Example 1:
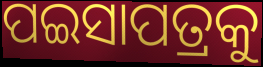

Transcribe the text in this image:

ପଇସାପତ୍ରକୁ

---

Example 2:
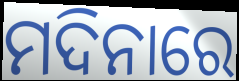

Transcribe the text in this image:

ମଦିନାରେ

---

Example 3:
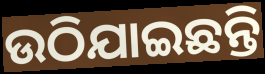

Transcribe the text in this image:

ଉଠିଯାଇଛନ୍ତି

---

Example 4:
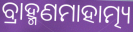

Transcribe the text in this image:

ବ୍ରାହ୍ମଣମାହାତ୍ମ୍ୟ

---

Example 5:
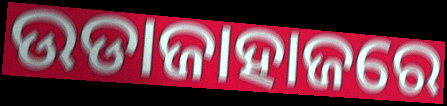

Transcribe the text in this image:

ଉଡାଜାହାଜରେ